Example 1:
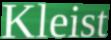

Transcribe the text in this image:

Kleist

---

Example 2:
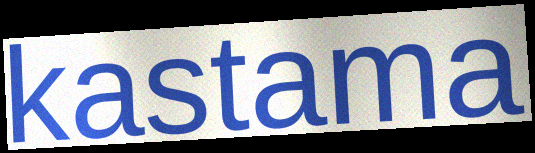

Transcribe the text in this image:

kastama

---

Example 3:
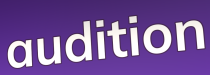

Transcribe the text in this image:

audition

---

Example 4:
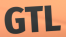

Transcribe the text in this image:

GTL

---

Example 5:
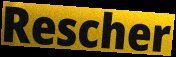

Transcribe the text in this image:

Rescher